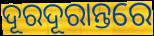
ଦୂରଦୂରାନ୍ତରେ